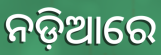
ନଡ଼ିଆରେ